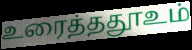
உரைத்ததூஉம்